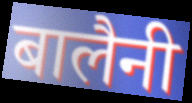
बालैनी